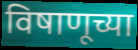
विषाणूच्या